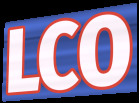
LCO